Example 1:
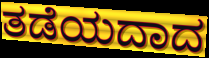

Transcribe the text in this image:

ತಡೆಯದಾದ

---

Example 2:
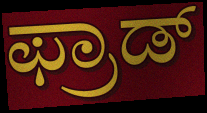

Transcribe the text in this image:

ಫ್ರಾಡ್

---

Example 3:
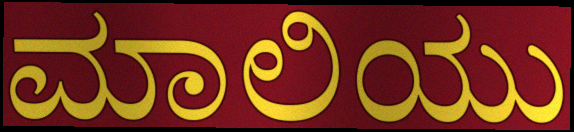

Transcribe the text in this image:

ಮಾಲಿಯು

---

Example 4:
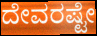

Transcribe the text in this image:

ದೇವರಷ್ಟೇ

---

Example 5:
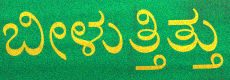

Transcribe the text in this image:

ಬೀಳುತ್ತಿತ್ತು